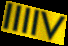
IIIIV